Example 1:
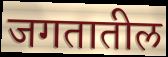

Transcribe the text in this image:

जगतातील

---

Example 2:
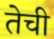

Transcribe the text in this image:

तेची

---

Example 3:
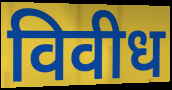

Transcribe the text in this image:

विवीध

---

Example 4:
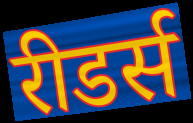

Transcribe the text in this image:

रीडर्स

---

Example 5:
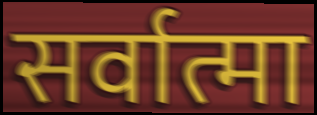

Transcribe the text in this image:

सर्वात्मा